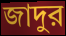
জাদুর